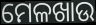
ମେଳଖାଉ